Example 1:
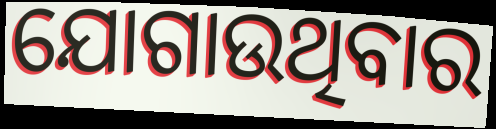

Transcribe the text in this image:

ଯୋଗାଉଥିବାର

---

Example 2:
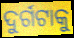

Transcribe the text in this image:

ଦୁର୍ଗଟାକୁ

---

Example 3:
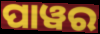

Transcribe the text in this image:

ପାୱର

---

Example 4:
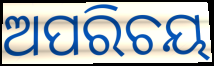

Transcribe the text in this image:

ଅପରିଚୟ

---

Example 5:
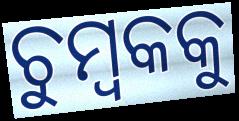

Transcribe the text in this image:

ଚୁମ୍ୱକକୁ